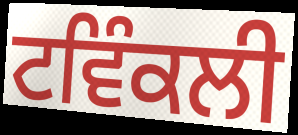
ਟਵਿੰਕਲੀ